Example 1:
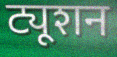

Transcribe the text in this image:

ट्यूशन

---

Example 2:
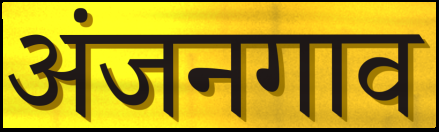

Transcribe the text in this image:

अंजनगाव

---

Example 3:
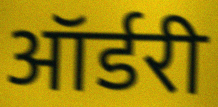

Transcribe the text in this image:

ऑर्डरी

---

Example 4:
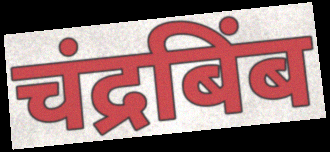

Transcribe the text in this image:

चंद्रबिंब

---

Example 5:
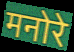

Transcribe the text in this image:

मनोरे